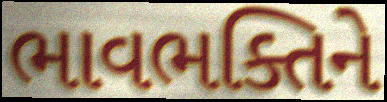
ભાવભક્તિને